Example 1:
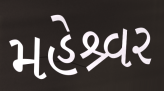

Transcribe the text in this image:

મહેશ્ર્વર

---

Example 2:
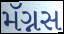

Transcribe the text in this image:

મૅગ્નસ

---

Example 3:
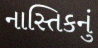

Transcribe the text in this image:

નાસ્તિકનું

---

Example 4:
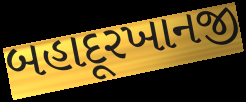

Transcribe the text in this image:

બહાદૂરખાનજી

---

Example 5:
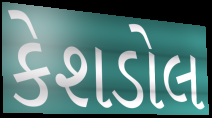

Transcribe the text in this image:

કેશડોલ